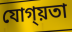
যোগ্য়তা